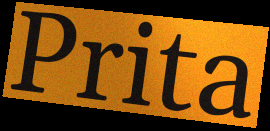
Prita